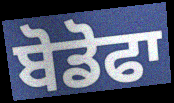
ਬੋਡੋਫਾ